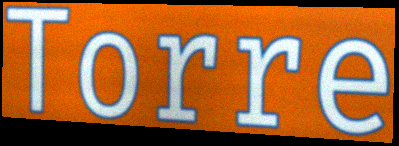
Torre